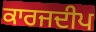
ਕਾਰਜਦੀਪ